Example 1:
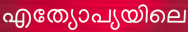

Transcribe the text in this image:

എത്യോപ്യയിലെ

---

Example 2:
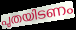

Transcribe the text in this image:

പുതയിടണം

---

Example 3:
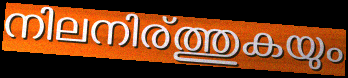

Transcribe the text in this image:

നിലനിര്ത്തുകയും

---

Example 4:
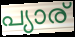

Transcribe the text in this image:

പ്യാര്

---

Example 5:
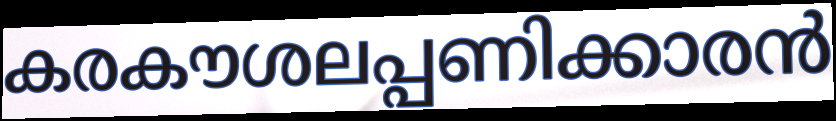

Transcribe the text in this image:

കരകൗശലപ്പണിക്കാരൻ